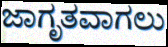
ಜಾಗೃತವಾಗಲು